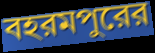
বহরমপুরের